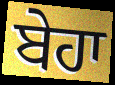
ਬੇਹਾ